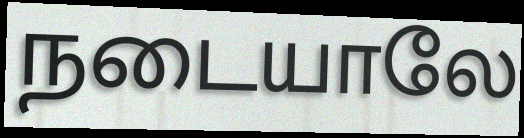
நடையாலே